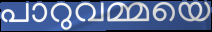
പാറുവമ്മയെ